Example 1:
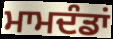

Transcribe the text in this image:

ਮਾਮਦੰਡਾਂ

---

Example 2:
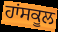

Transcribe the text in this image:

ਹਾਂਸਕੂਲ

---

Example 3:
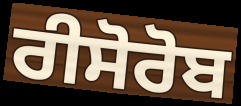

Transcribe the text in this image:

ਰੀਸੋਰੋਬ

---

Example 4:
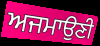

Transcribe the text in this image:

ਅਜਮਾਉਣੀ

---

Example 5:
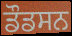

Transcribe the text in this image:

ਡੌਡਸਨ